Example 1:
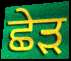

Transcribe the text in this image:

ਛੇੜ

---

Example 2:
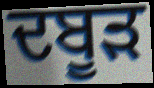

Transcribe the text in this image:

ਦਬੂੜ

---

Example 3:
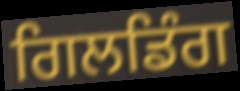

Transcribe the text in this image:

ਗਿਲਡਿੰਗ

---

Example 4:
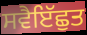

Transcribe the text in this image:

ਸਵੈਇੱਛੁਤ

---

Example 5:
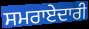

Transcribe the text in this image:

ਸਮਰਾਏਦਾਰੀ